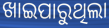
ଖାଇପାରୁଥିଲା